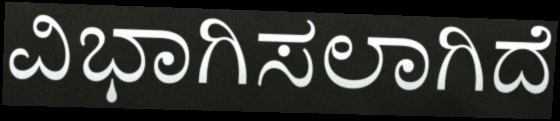
ವಿಭಾಗಿಸಲಾಗಿದೆ